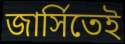
জার্সিতেই